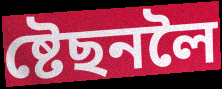
ষ্টেছনলৈ